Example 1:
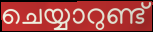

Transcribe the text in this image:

ചെയ്യാറുണ്ട്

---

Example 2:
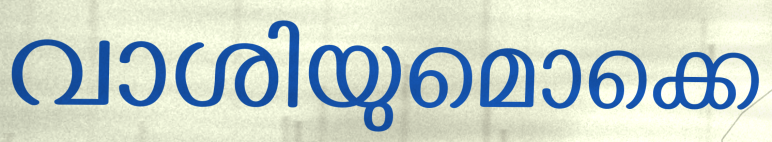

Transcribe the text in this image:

വാശിയുമൊക്കെ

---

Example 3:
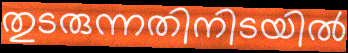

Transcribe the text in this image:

തുടരുന്നതിനിടയിൽ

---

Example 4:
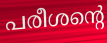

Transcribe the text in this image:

പരീശന്റെ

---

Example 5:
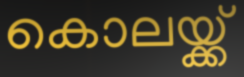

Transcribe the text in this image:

കൊലയ്ക്ക്